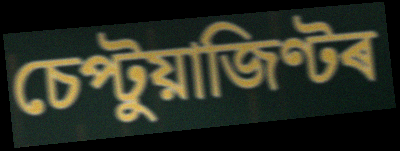
চেপ্টুয়াজিণ্টৰ